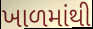
ખાળમાંથી